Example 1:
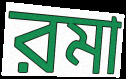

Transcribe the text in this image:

রমা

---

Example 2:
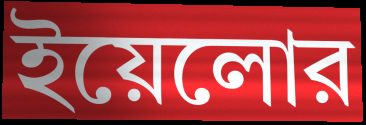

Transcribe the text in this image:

ইয়েলোর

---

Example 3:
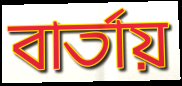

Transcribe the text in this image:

বার্তায়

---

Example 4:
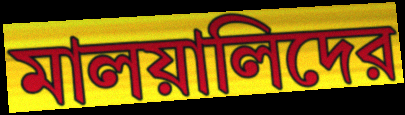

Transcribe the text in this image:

মালয়ালিদের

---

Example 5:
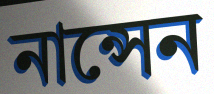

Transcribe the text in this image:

নান্সেন